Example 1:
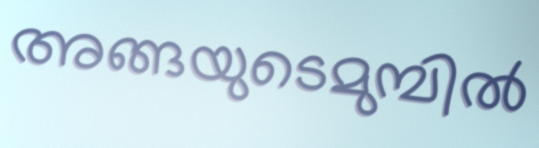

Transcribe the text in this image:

അങ്ങയുടെമുമ്പിൽ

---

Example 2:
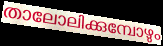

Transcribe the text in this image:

താലോലിക്കുമ്പോഴും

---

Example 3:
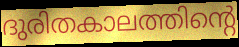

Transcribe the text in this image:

ദുരിതകാലത്തിന്റെ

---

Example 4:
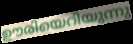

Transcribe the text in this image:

ഊരിയെറിയുന്നു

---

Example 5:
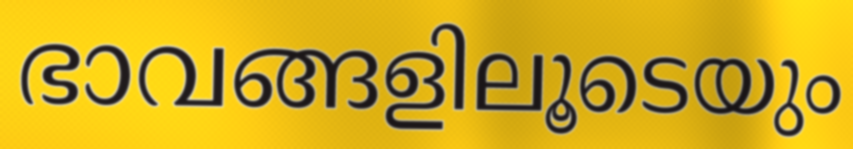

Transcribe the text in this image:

ഭാവങ്ങളിലൂടെയും